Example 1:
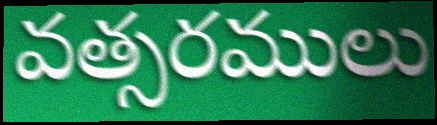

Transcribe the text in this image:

వత్సరములు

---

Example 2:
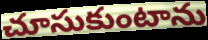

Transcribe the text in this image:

చూసుకుంటాను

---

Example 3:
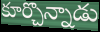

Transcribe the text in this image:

కూర్చొన్నాడు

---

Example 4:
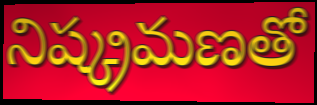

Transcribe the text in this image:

నిష్క్రమణతో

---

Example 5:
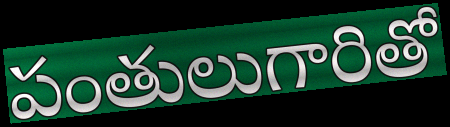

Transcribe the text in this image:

పంతులుగారితో